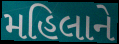
મહિલાને